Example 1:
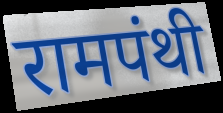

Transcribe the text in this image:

रामपंथी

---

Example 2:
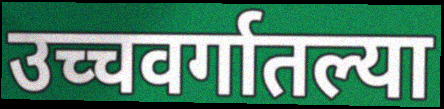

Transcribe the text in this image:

उच्चवर्गातल्या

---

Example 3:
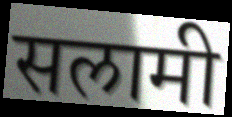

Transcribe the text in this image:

सलामी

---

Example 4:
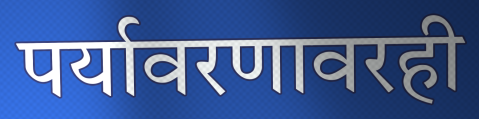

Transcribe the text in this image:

पर्यावरणावरही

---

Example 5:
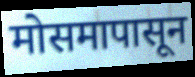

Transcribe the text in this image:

मोसमापासून